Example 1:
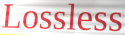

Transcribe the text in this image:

Lossless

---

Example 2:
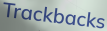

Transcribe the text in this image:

Trackbacks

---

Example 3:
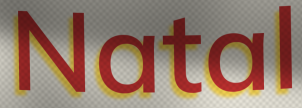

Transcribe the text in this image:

Natal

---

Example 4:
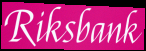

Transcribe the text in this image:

Riksbank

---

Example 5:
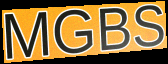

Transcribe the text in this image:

MGBS